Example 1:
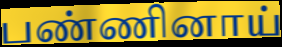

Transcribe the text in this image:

பண்ணினாய்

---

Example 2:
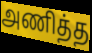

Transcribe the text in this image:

அணித்த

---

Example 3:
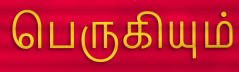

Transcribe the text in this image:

பெருகியும்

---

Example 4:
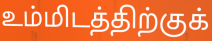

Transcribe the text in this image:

உம்மிடத்திற்குக்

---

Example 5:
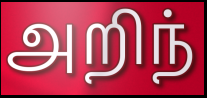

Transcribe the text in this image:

அறிந்